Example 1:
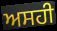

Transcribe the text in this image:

ਅਸਹੀ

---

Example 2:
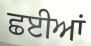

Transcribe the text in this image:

ਛਈਆਂ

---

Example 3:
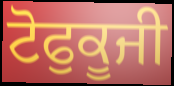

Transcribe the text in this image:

ਟੋਫੁਕੂਜੀ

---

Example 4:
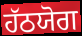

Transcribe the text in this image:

ਹੱਠਯੋਗ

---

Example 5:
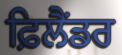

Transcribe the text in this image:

ਫ਼ਿਲੈਂਡਰ